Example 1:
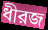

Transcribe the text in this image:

ধীরজ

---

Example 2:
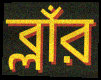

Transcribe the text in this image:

ব্লাঁর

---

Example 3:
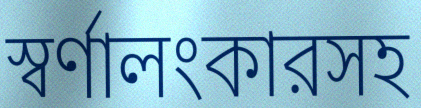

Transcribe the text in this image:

স্বর্ণালংকারসহ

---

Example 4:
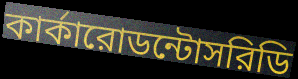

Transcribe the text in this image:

কার্কারোডন্টোসরিডি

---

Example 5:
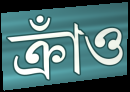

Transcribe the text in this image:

ক্রাঁও